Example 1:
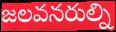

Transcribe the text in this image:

జలవనరుల్ని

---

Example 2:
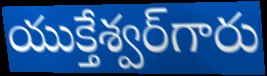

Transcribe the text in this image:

యుక్తేశ్వర్‌గారు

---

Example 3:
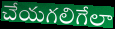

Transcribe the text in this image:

చేయగలిగేలా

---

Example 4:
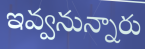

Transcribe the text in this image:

ఇవ్వనున్నారు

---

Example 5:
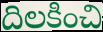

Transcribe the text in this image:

దిలకించి